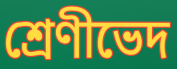
শ্রেণীভেদ